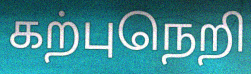
கற்புநெறி